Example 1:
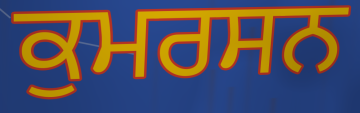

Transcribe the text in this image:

ਕੁਮਰਸਨ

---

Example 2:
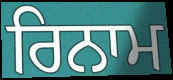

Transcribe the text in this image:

ਰਿਨਾਮ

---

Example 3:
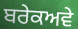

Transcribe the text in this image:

ਬਰੇਕਅਵੇ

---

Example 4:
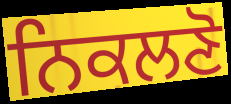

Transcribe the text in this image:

ਨਿਕਲਣੋ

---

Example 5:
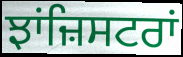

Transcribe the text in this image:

ਝਾਂਜ਼ਿਸਟਰਾਂ